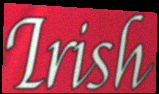
Irish